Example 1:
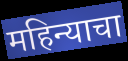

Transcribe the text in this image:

महिन्याचा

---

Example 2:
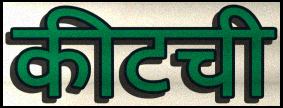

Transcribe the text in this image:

कीटची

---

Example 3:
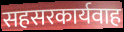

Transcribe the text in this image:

सहसरकार्यवाह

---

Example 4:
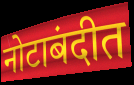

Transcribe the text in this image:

नोटाबंदीत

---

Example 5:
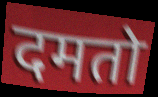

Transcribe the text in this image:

दमतो